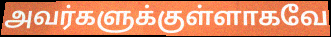
அவர்களுக்குள்ளாகவே